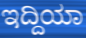
ಇದ್ದಿಯಾ